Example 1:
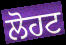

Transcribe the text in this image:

ਲੋਹਟ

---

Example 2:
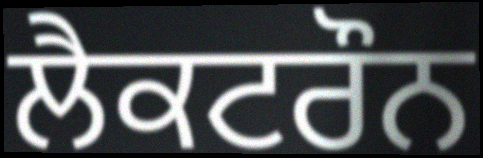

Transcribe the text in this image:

ਲੈਕਟਰੌਨ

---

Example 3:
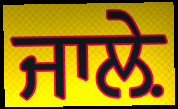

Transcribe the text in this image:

ਜਾਲ਼ੇ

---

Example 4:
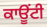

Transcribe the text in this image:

ਕਾਊਂਟੀ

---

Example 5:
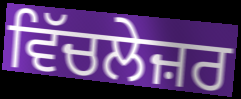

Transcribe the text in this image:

ਵਿੱਚਲੇਜ਼ਰ